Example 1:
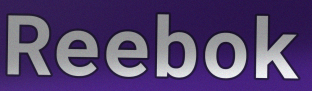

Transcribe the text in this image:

Reebok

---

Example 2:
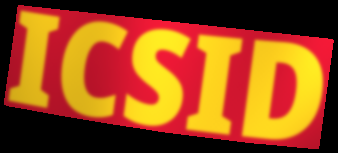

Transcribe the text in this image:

ICSID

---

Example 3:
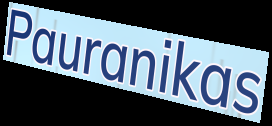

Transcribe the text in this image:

Pauranikas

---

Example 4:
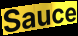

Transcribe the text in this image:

Sauce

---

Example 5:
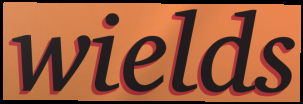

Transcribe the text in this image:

wields